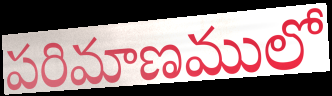
పరిమాణములో